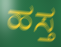
ಹಸ್ತ